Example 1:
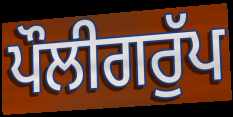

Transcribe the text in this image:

ਪੌਲੀਗਰੁੱਪ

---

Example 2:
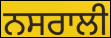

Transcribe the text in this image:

ਨਸਰਾਲੀ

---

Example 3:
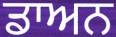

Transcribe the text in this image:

ਡਾਅਨ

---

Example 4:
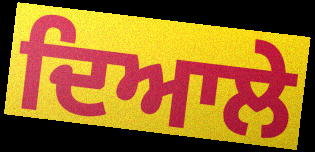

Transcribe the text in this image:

ਦਿਆਲੇ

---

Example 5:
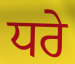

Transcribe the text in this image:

ਧਰੇ